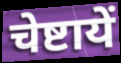
चेष्टायें